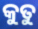
କୁତୁ